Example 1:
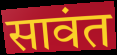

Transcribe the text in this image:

सावंत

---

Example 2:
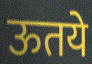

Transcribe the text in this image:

ऊतये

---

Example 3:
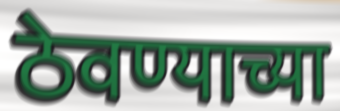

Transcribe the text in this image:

ठेवण्याच्या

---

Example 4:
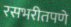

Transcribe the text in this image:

रसभरीतपणे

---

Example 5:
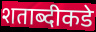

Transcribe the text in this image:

शताब्दीकडे